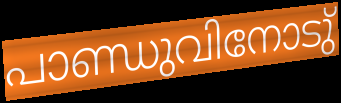
പാണ്ഡുവിനോടു്